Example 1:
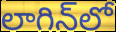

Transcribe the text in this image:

లాగిన్‌లో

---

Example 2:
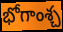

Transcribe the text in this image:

భోగాంశ్చ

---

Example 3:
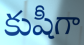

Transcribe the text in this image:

కుషీగా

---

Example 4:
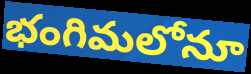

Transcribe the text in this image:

భంగిమలోనూ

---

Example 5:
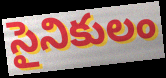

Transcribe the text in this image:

సైనికులం